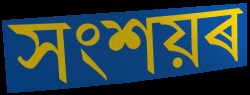
সংশয়ৰ